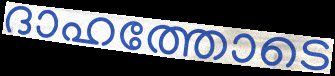
ദാഹത്തോടെ